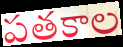
పతకాల